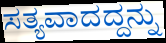
ಸತ್ಯವಾದದ್ದನ್ನು